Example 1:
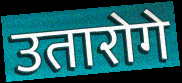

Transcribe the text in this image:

उतारोगे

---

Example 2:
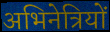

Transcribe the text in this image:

अभिनेत्रियों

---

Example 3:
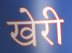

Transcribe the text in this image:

खेरी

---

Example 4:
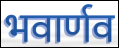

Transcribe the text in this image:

भवार्णव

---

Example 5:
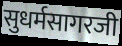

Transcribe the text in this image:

सुधर्मसागरजी